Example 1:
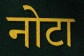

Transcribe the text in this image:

नोटा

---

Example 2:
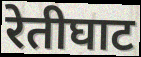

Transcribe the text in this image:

रेतीघाट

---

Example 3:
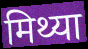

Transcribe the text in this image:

मिथ्या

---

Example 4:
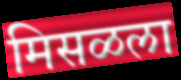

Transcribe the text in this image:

मिसळला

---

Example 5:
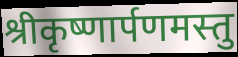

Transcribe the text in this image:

श्रीकृष्णार्पणमस्तु